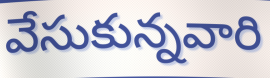
వేసుకున్నవారి